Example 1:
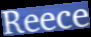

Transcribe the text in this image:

Reece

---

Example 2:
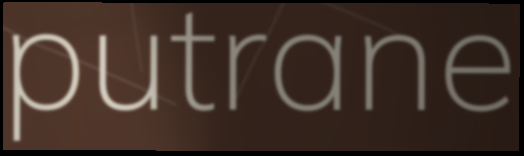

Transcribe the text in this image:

putrane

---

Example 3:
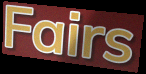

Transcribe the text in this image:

Fairs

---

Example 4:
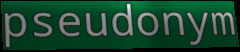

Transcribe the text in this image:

pseudonym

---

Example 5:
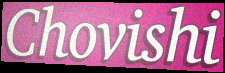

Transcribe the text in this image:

Chovishi